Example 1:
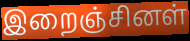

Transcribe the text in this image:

இறைஞ்சினள்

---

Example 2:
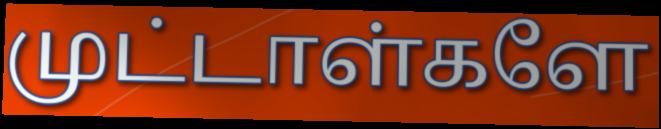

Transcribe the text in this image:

முட்டாள்களே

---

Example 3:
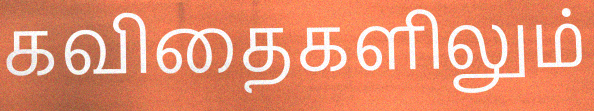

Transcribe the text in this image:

கவிதைகளிலும்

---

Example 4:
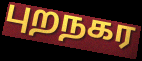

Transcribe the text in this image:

புறநகர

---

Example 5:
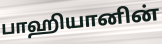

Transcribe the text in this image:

பாஹியானின்